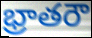
భ్రాతరౌ